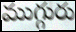
ముగ్గురు